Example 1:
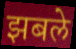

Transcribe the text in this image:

झबले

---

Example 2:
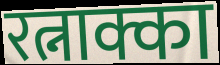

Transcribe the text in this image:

रत्नाक्का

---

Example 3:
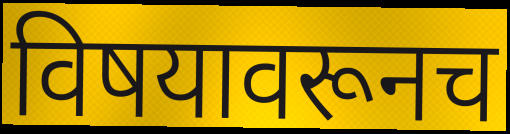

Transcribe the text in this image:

विषयावरूनच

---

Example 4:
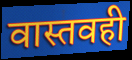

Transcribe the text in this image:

वास्तवही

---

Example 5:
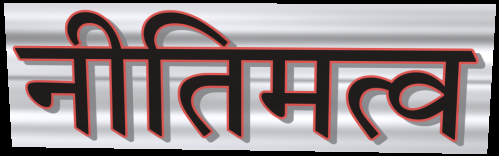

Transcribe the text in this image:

नीतिमत्व